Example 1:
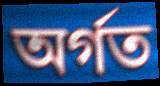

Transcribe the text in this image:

অৰ্গত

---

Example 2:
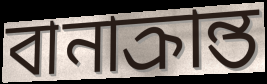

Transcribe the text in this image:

বানাক্ৰান্ত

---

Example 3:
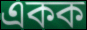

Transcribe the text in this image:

একক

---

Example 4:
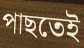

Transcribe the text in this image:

পাছতেই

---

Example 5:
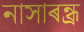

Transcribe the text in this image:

নাসাৰন্ধ্ৰ